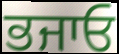
ਭਜਾਓ